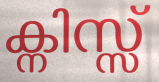
ക്നിസ്സ്